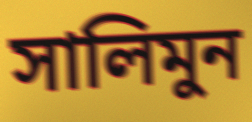
সালিমুন